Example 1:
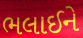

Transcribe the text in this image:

ભલાઈને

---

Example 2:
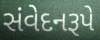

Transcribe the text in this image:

સંવેદનરૂપે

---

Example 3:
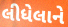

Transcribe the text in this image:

લીધેલાને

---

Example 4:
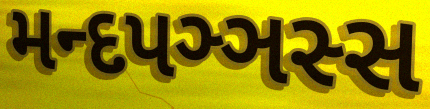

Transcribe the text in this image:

મન્દપઞ્ઞસ્સ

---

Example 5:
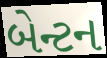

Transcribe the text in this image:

બેન્ટન